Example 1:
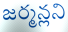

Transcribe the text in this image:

జర్మన్లని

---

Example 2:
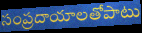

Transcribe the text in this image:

సంప్రదాయాలతోపాటు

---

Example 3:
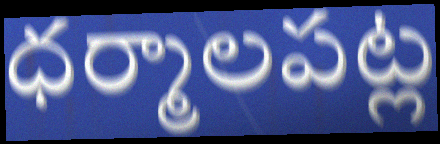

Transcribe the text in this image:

ధర్మాలపట్ల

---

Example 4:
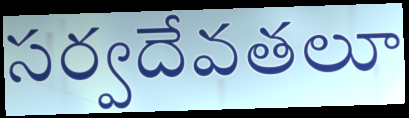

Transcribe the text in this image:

సర్వదేవతలూ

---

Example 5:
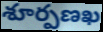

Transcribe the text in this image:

శూర్పణఖ